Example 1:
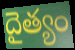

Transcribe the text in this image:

దైత్యం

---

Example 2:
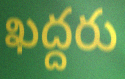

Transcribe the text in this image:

ఖద్దరు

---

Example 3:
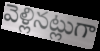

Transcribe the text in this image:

వెళ్లినట్లుగా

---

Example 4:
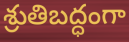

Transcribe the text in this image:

శ్రుతిబద్ధంగా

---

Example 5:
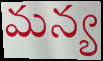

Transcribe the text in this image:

మన్య